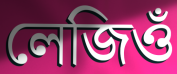
লেজিওঁ